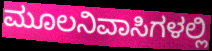
ಮೂಲನಿವಾಸಿಗಳಲ್ಲಿ